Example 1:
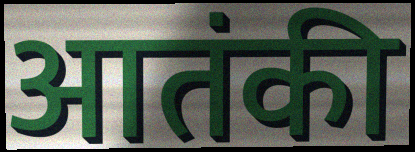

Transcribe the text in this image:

आतंकी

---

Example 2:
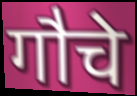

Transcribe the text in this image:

गौचे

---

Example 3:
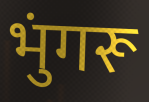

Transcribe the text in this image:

भुंगरू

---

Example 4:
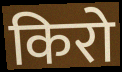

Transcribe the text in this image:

किरो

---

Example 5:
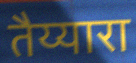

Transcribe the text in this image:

तैय्यारा